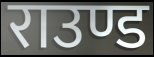
राउण्ड